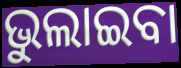
ଭୁଲାଇବା